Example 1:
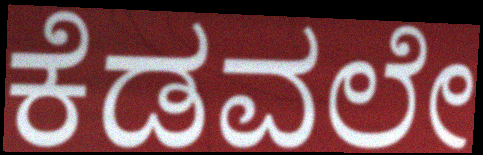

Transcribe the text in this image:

ಕೆಡವಲೇ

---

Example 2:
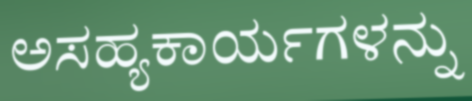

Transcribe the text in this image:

ಅಸಹ್ಯಕಾರ್ಯಗಳನ್ನು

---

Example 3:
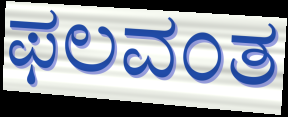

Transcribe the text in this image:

ಫಲವಂತ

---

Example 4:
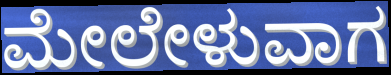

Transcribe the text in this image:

ಮೇಲೇಳುವಾಗ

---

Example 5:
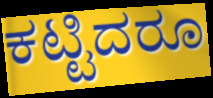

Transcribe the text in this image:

ಕಟ್ಟಿದರೂ